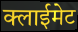
क्लाईमेट